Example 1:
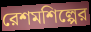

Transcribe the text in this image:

রেশমশিল্পের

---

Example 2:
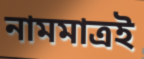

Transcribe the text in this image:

নামমাত্রই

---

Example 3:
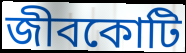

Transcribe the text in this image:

জীবকোটি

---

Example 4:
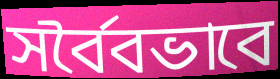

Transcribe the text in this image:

সর্বৈবভাবে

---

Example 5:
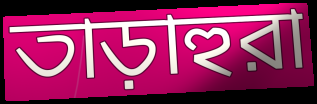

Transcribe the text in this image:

তাড়াহুরা